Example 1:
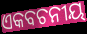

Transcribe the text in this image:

ଏକବଚନୀୟ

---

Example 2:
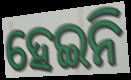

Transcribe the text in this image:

ହେଇନି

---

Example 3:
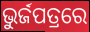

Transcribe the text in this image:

ଭୁର୍ଜପତ୍ରରେ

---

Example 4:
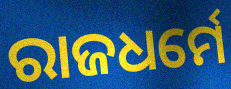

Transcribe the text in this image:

ରାଜଧର୍ମେ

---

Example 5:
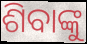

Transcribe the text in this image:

ଶିବାଙ୍କୁ